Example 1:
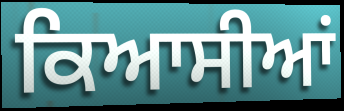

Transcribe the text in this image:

ਕਿਆਸੀਆਂ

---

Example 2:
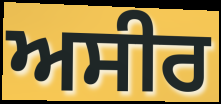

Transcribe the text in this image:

ਅਸੀਰ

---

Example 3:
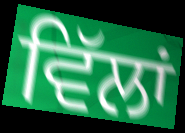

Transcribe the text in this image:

ਵਿੱਲਾਂ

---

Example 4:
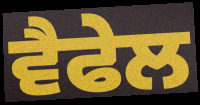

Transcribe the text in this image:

ਵੈਫੇਲ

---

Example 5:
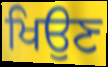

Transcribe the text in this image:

ਖਿਉਣ